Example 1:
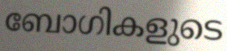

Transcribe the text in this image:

ബോഗികളുടെ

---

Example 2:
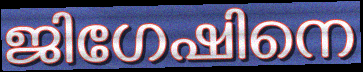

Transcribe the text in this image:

ജിഗേഷിനെ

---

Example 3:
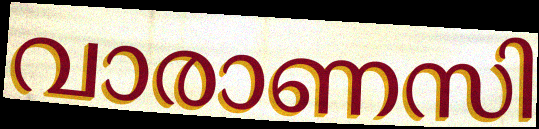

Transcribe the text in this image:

വാരാണസി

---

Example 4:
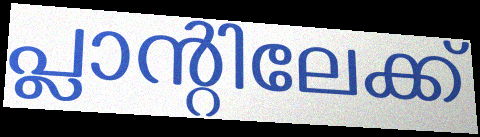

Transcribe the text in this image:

പ്ലാന്റിലേക്ക്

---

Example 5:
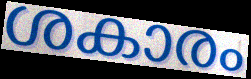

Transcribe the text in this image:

ശകാരം